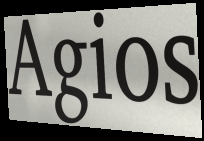
Agios